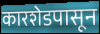
कारशेडपासून